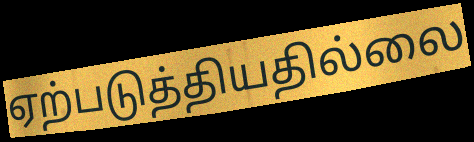
ஏற்படுத்தியதில்லை